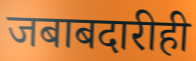
जबाबदारीही